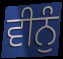
ਵੀਨੁੰ